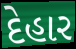
દેહાર